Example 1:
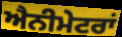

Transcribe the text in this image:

ਐਨੀਮੇਟਰਾਂ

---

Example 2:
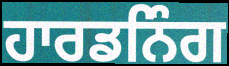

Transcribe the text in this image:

ਹਾਰਡਨਿੰਗ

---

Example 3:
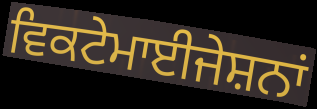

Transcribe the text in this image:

ਵਿਕਟੇਮਾਈਜੇਸ਼ਨਾਂ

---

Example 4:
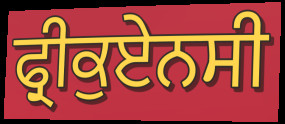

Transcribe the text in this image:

ਫ੍ਰੀਕੁਏਨਸੀ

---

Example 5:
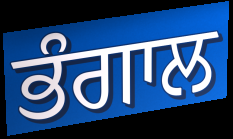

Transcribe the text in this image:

ਭੰਗਾਲ